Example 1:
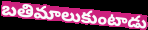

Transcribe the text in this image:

బతిమాలుకుంటాడు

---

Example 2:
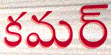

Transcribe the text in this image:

కమర్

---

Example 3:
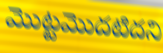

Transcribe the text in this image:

మొట్టమొదటిదని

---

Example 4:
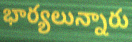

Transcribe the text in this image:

భార్యలున్నారు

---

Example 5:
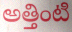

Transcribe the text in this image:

అత్తింటి